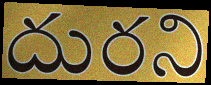
దురని